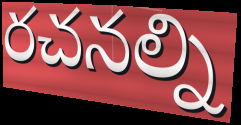
రచనల్ని